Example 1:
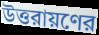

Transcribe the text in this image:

উত্তরায়ণের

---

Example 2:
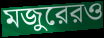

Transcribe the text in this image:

মজুরেরও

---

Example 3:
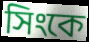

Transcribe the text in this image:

সিংকে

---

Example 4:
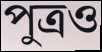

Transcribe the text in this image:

পুত্রও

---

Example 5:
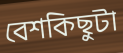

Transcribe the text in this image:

বেশকিছুটা